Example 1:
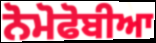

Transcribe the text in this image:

ਨੋਮੋਫੋਬੀਆ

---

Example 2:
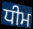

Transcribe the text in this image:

ਧੀਮ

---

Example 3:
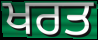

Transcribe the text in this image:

ਖਰਤ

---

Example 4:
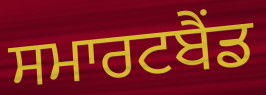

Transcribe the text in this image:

ਸਮਾਰਟਬੈਂਡ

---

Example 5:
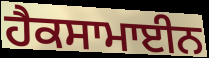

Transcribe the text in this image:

ਹੈਕਸਾਮਾਈਨ